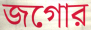
জগোর